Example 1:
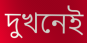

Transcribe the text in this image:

দুখনেই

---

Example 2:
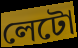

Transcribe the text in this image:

লেটো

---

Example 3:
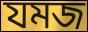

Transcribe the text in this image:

যমজ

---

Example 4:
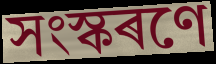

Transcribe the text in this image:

সংস্কৰণে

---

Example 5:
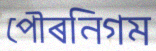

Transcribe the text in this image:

পৌৰনিগম